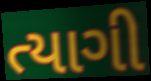
ત્યાગી